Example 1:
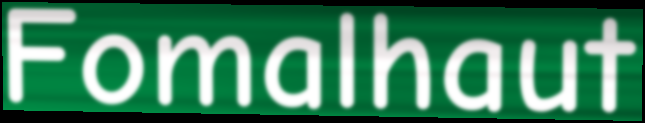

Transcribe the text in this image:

Fomalhaut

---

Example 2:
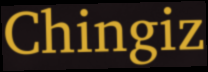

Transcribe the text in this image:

Chingiz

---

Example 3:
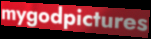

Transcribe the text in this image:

mygodpictures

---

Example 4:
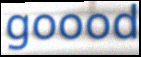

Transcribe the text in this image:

goood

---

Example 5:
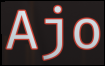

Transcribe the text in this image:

Ajo